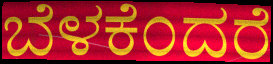
ಬೆಳಕೆಂದರೆ